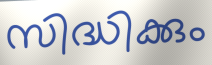
സിദ്ധിക്കും